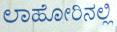
ಲಾಹೋರಿನಲ್ಲಿ